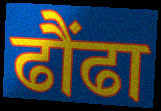
ढौंढा